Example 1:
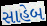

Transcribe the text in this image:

સાહેબ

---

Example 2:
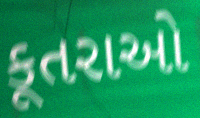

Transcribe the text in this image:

કૂતરાઓ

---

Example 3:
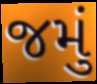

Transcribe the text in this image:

જમું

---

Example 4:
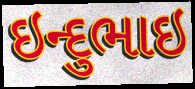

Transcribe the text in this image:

ઇન્દુભાઇ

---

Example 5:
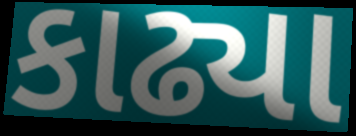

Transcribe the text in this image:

કાઢ્યા